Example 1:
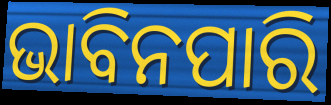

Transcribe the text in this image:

ଭାବିନପାରି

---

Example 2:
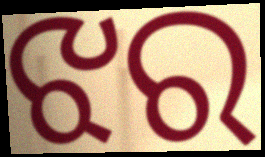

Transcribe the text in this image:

ଝର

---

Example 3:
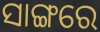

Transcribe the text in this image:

ସାଙ୍ଗରେ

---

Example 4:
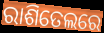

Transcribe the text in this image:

ରାଶିତେଲରେ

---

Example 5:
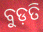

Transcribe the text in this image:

ବୁଡ଼ତି